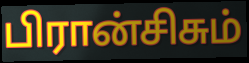
பிரான்சிசும்